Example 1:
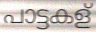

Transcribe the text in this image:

പാട്ടകള്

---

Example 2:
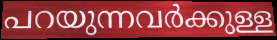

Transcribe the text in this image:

പറയുന്നവർക്കുള്ള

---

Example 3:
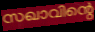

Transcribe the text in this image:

സഖാവിന്റെ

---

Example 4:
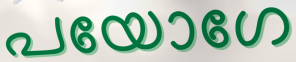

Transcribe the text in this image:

പയോഗേ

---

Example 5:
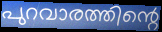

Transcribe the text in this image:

പുറവാരത്തിന്റെ